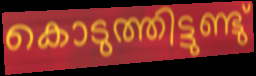
കൊടുത്തിട്ടുണ്ടു്